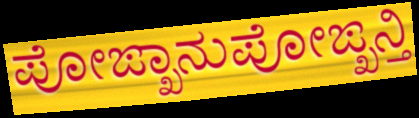
ಪೋಙ್ಖಾನುಪೋಙ್ಖನ್ತಿ